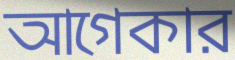
আগেকার